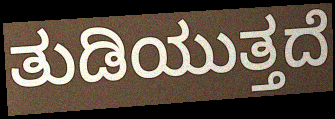
ತುಡಿಯುತ್ತದೆ